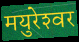
मयुरेश्वर